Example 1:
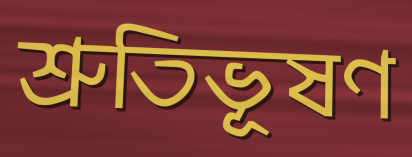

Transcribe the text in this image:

শ্রুতিভূষণ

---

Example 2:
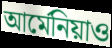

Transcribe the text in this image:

আর্মেনিয়াও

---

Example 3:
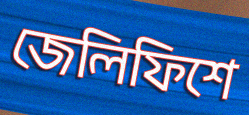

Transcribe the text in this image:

জেলিফিশে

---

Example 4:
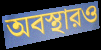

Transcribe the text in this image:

অবস্থারও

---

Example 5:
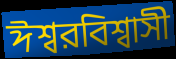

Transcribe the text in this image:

ঈশ্বরবিশ্বাসী